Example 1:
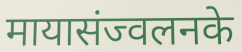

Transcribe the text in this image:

मायासंज्वलनके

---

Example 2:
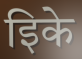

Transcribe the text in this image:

इिके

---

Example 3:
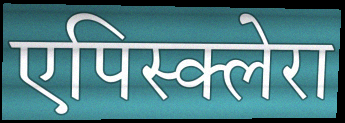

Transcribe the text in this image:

एपिस्क्लेरा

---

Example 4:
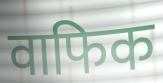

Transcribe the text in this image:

वाफिक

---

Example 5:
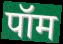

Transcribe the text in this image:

पॉम